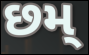
છમ્